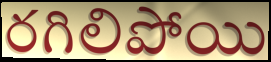
రగిలిపోయి